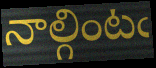
నాల్గింటఁ